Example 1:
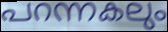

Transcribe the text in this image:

പറന്നകലും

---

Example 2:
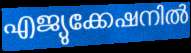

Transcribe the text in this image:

എജ്യുക്കേഷനിൽ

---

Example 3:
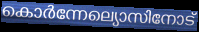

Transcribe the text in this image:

കൊർന്നേല്യൊസിനോട്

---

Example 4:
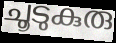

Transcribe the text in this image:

ചൂടുകുരു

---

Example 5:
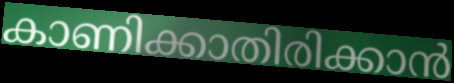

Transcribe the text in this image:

കാണിക്കാതിരിക്കാൻ